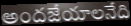
అందజేయాలనేది